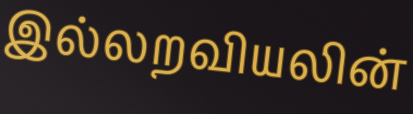
இல்லறவியலின்